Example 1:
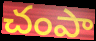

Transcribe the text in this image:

చంపా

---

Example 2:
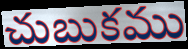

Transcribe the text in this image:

చుబుకము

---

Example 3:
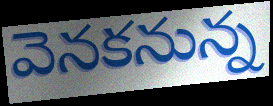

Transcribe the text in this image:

వెనకనున్న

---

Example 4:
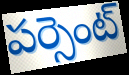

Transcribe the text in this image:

పర్సెంట్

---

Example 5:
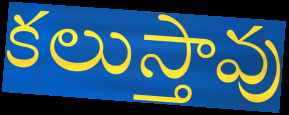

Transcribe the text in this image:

కలుస్తావు